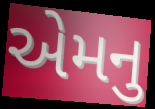
એમનુ